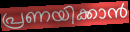
പ്രണയിക്കാൻ